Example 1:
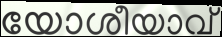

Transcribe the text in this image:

യോശീയാവ്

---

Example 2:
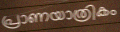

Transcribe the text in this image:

പ്രാണയാത്രികം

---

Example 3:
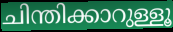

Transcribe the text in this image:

ചിന്തിക്കാറുള്ളൂ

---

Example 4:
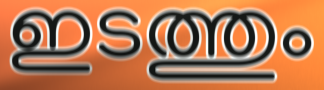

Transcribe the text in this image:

ഇടത്തും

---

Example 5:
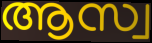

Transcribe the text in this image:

ആസ്വ